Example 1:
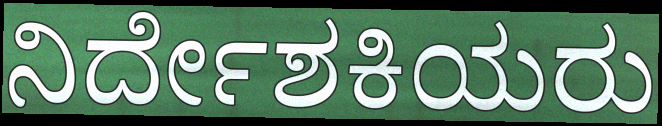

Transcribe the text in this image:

ನಿರ್ದೇಶಕಿಯರು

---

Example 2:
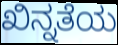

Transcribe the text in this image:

ಖಿನ್ನತೆಯ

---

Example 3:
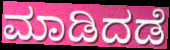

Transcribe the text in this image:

ಮಾಡಿದಡೆ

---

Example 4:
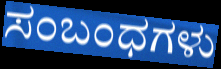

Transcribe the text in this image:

ಸಂಬಂಧಗಳು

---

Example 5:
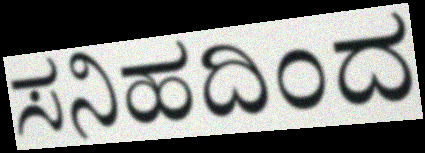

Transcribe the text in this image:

ಸನಿಹದಿಂದ